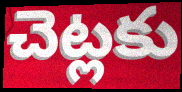
చెట్లకు